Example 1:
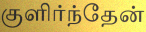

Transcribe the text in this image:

குளிர்ந்தேன்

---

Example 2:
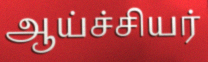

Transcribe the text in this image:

ஆய்ச்சியர்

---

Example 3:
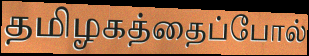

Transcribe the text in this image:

தமிழகத்தைப்போல்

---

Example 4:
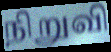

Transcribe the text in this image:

நிறுவி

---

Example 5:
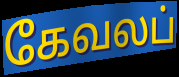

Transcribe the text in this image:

கேவலப்